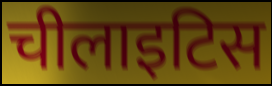
चीलाइटिस